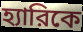
হ্যারিকে